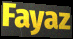
Fayaz